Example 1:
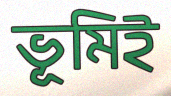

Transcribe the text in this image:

ভূমিই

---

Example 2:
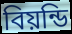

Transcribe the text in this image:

বিয়ন্ডি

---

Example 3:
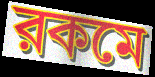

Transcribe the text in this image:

রকমে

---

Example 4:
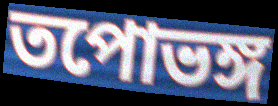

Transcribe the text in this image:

তপোভঙ্গ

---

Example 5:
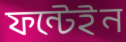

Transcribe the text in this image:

ফন্টেইন